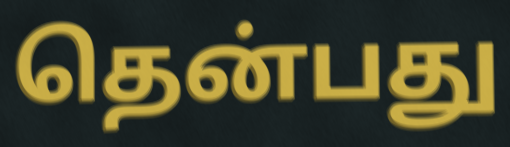
தென்பது